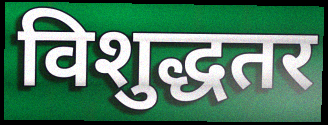
विशुद्धतर